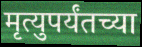
मृत्युपर्यंतच्या